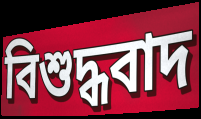
বিশুদ্ধবাদ